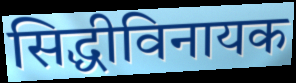
सिद्धीविनायक